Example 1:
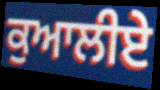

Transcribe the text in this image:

ਕੁਆਲੀਏ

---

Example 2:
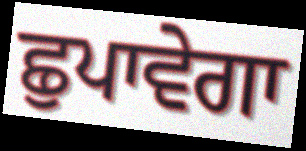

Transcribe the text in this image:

ਛੁਪਾਵੇਗਾ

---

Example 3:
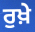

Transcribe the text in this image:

ਰੁਖ਼ੇ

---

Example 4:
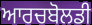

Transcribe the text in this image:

ਆਰਚਬੋਲਡੀ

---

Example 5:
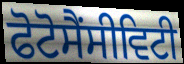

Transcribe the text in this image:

ਫੋਟੋਸੈਂਸੀਵਿਟੀ